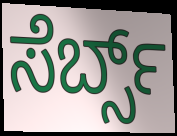
ಸೆರ್ಬ್ಸ್